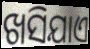
ଖସିଯାଏ